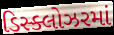
ડિસ્ક્લોઝરમાં